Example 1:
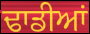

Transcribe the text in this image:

ਢਾਡੀਆਂ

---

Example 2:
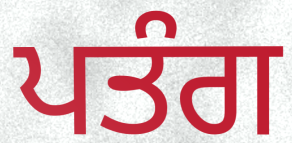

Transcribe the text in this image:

ਪਤੰਗ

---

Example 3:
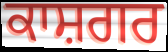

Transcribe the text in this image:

ਕਾਸ਼ਗਰ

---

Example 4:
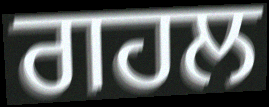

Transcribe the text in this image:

ਗਹਲ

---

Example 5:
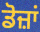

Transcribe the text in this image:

ਡੋਜ਼ਾਂ